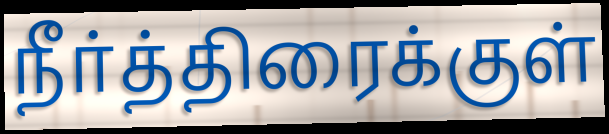
நீர்த்திரைக்குள்